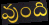
వుంది